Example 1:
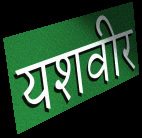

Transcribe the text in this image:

यशवीर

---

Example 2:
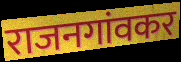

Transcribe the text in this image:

राजनगांवकर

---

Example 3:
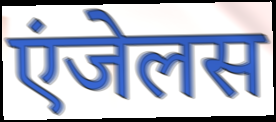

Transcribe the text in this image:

एंजेलस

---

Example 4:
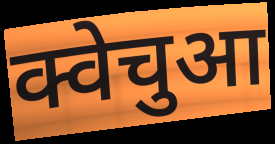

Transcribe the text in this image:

क्वेचुआ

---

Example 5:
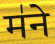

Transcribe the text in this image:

म॑ने